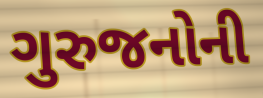
ગુરુજનોની